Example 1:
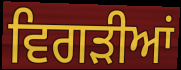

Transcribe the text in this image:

ਵਿਗੜੀਆਂ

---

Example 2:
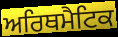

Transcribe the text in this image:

ਅਰਿਥਮੈਟਿਕ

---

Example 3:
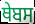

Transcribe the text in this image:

ਥੇਬਸ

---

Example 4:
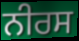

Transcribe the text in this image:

ਨੀਰਸ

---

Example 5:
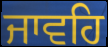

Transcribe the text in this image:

ਜਾਵਹਿ